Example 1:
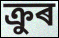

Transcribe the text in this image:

ক্ৰুৰ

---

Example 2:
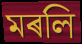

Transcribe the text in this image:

মৰলি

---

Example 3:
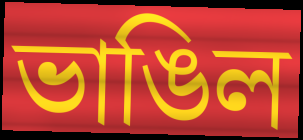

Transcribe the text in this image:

ভাঙিল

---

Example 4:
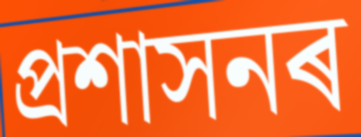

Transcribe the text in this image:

প্ৰশাসনৰ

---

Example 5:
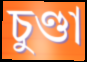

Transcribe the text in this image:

চুণ্ডা